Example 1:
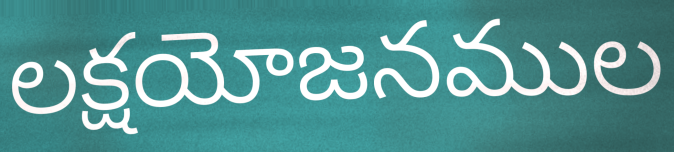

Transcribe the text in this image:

లక్షయోజనముల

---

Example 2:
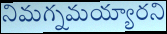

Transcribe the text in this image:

నిమగ్నమయ్యారని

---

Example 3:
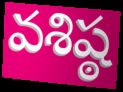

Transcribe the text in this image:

వశిష్ఠ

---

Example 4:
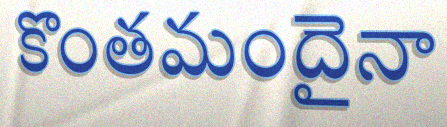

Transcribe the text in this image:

కొంతమందైనా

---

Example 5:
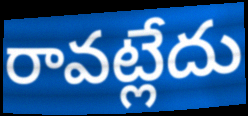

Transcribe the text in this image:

రావట్లేదు